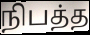
நிபத்த